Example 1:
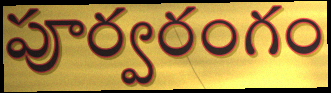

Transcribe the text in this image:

పూర్వరంగం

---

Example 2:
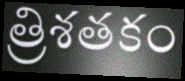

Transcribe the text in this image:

త్రిశతకం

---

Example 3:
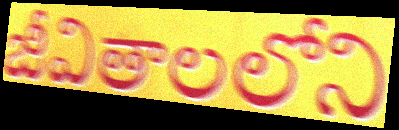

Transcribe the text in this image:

జీవితాలలోని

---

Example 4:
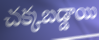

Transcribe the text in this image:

చక్కబడ్డాయి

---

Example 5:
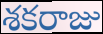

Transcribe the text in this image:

శకరాజు